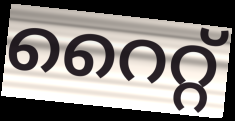
റൈറ്റ്